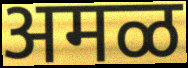
अमळ